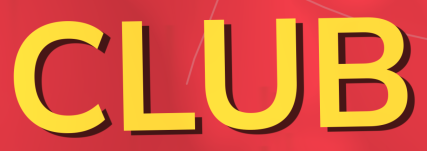
CLUB